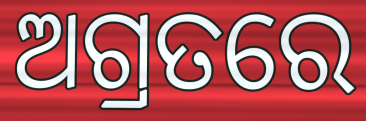
ଅଗ୍ରତରେ